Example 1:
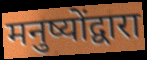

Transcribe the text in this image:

मनुष्योंद्वारा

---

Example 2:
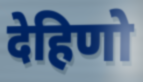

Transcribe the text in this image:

देहिणो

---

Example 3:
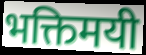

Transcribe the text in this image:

भक्तिमयी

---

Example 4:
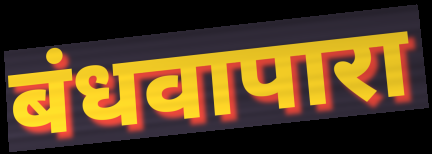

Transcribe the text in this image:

बंधवापारा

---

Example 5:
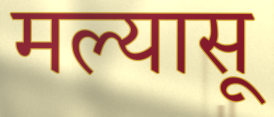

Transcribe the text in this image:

मल्यासू